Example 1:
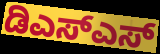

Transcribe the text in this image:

ಡಿಎಸ್ಎಸ್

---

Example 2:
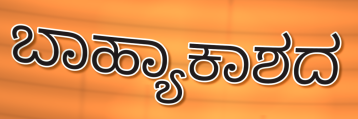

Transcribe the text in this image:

ಬಾಹ್ಯಾಕಾಶದ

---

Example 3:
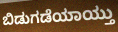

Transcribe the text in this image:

ಬಿಡುಗಡೆಯಾಯ್ತು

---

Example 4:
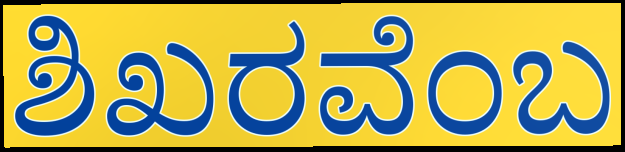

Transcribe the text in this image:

ಶಿಖರವೆಂಬ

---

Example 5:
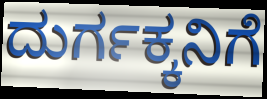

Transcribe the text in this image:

ದುರ್ಗಕ್ಕನಿಗೆ